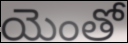
యెంతో